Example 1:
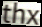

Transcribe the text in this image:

thx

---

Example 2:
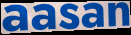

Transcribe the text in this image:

aasan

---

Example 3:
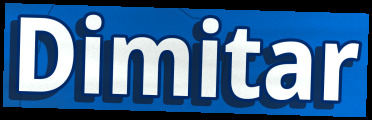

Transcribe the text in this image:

Dimitar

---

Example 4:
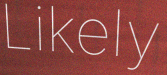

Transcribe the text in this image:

Likely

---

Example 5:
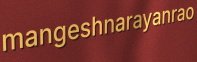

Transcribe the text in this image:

mangeshnarayanrao